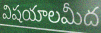
విషయాలమీద